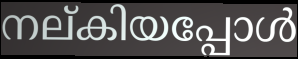
നല്കിയപ്പോൾ